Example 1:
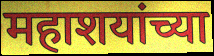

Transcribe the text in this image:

महाशयांच्या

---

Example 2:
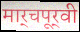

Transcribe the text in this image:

मार्चपूर्वी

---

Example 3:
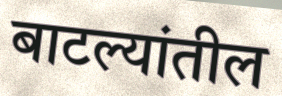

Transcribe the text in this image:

बाटल्यांतील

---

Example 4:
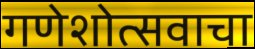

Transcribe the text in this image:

गणेशोत्सवाचा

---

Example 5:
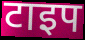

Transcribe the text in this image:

टाइप